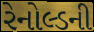
રેનોલ્ડની